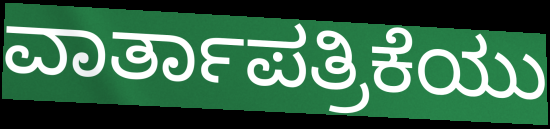
ವಾರ್ತಾಪತ್ರಿಕೆಯು